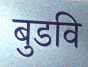
बुडवि